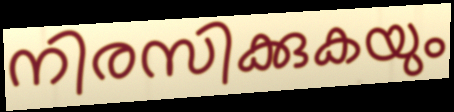
നിരസിക്കുകയും